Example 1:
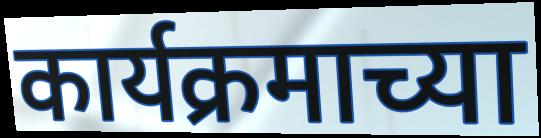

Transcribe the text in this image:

कार्यक्रमाच्या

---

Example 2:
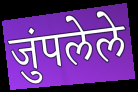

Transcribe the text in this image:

जुंपलेले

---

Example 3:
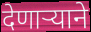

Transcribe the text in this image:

देणार्‍याने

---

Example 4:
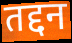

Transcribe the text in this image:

तद्दन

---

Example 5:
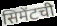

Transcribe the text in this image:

सिमेंटची